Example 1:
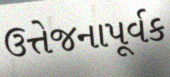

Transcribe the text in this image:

ઉત્તેજનાપૂર્વક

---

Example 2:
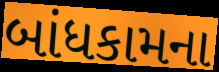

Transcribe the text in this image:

બાંધકામના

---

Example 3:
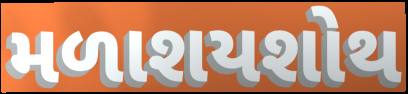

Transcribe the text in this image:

મળાશયશોથ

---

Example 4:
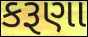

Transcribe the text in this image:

કરૂણા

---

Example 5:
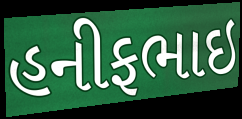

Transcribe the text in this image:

હનીફભાઇ